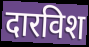
दारविश